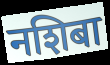
नशिबा